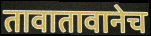
तावातावानेच